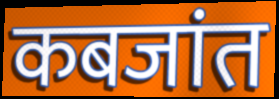
कबजांत